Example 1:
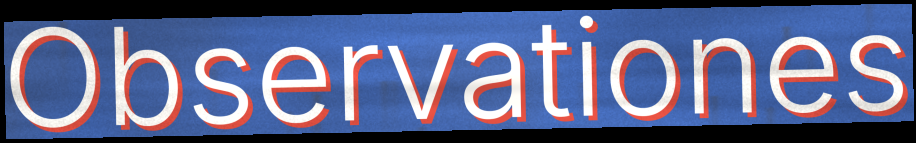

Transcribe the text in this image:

Observationes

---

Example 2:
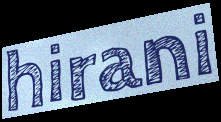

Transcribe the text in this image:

hirani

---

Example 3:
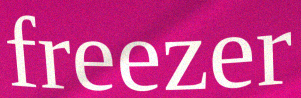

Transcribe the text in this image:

freezer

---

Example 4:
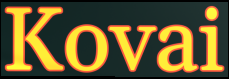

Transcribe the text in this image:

Kovai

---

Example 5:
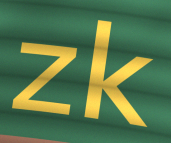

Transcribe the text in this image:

zk